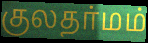
குலதர்மம்